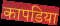
कापडिया